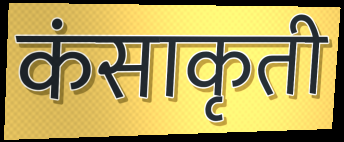
कंसाकृती